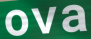
ova